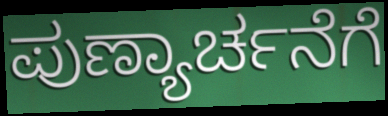
ಪುಣ್ಯಾರ್ಚನೆಗೆ